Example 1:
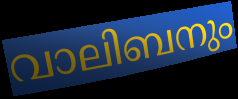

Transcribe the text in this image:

വാലിബനും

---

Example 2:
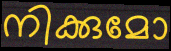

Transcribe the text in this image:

നിക്കുമോ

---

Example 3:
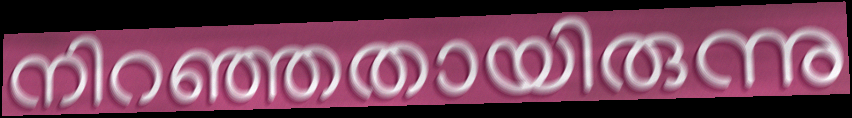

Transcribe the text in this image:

നിറഞ്ഞതായിരുന്നു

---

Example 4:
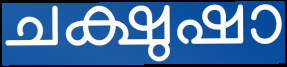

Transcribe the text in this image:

ചക്ഷുഷാ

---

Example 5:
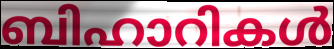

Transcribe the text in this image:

ബിഹാറികൾ